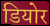
डियोर